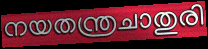
നയതന്ത്രചാതുരി